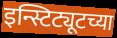
इन्स्टिट्यूटच्या